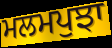
ਮਲਮਪੁਝਾ